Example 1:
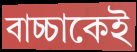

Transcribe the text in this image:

বাচ্চাকেই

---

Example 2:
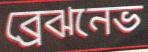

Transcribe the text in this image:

ব্রেঝনেভ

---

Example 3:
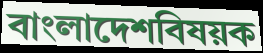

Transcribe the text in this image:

বাংলাদেশবিষয়ক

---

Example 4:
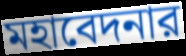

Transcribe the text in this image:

মহাবেদনার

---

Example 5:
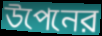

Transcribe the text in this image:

উপেনের